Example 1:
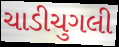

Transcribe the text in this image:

ચાડીચુગલી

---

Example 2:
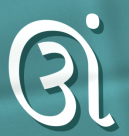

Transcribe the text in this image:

ઊં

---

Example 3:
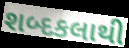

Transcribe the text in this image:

શબ્દકલાથી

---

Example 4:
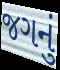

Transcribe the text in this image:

જગનું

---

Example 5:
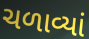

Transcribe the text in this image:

ચળાવ્યાં